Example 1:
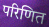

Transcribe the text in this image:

परिणित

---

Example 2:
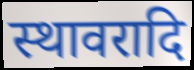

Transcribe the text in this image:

स्थावरादि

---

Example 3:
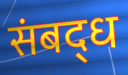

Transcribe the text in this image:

संबद्ध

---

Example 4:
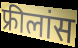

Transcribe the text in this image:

फ्रीलांस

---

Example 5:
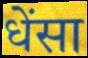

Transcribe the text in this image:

धेंसा